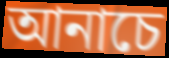
আনাচে